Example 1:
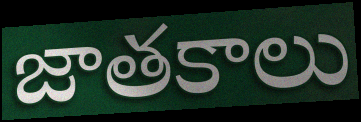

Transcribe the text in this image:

జాతకాలు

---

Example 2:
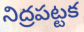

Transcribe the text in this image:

నిద్రపట్టక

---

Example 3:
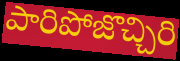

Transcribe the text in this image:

పారిపోజొచ్చిరి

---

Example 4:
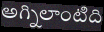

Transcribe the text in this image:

అగ్నిలాంటిది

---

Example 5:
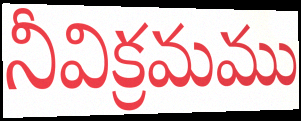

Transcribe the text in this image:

నీవిక్రమము